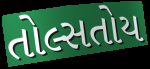
તોલ્સતોય